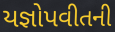
યજ્ઞોપવીતની